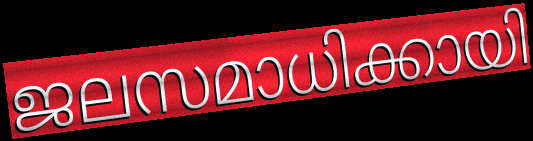
ജലസമാധിക്കായി